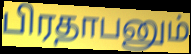
பிரதாபனும்